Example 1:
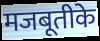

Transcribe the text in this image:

मजबूतीके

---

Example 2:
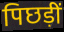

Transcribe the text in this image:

पिछड़ीं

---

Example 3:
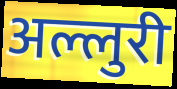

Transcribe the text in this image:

अल्लुरी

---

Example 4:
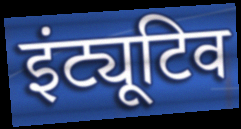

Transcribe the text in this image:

इंट्यूटिव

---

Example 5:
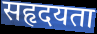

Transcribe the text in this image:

सहृदयता